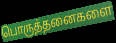
பொருத்தனைகளை